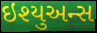
ઇશ્યુઅન્સ